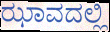
ಝಾವದಲ್ಲಿ